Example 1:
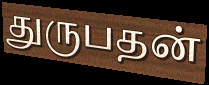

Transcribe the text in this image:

துருபதன்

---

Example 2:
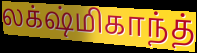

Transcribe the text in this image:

லக்‌ஷ்மிகாந்த்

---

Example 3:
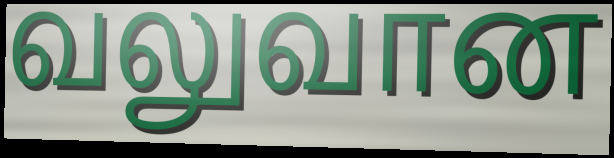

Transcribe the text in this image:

வலுவான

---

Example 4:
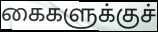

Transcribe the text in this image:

கைகளுக்குச்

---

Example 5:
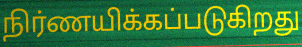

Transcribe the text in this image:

நிர்ணயிக்கப்படுகிறது